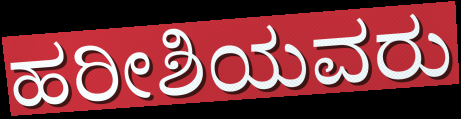
ಹರೀಶಿಯವರು